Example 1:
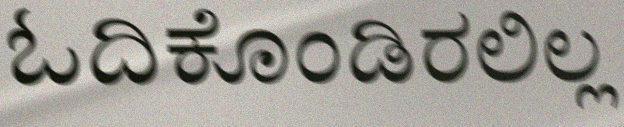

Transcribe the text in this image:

ಓದಿಕೊಂಡಿರಲಿಲ್ಲ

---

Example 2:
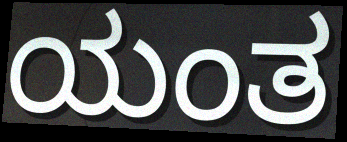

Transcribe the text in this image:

ಯಂತ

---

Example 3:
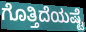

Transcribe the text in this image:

ಗೊತ್ತಿದೆಯಷ್ಟೆ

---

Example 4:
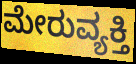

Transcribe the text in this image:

ಮೇರುವ್ಯಕ್ತಿ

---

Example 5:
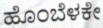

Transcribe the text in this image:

ಹೊಂಬೆಳಕೇ